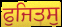
ਫੁਜਿਤਸੁ